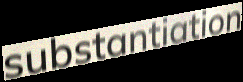
substantiation